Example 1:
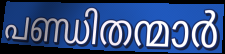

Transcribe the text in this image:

പണ്ഡിതന്മാർ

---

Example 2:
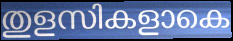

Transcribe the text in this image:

തുളസികളാകെ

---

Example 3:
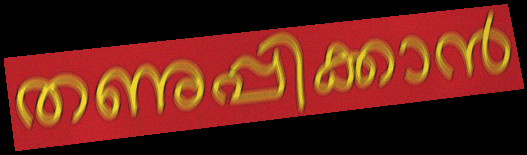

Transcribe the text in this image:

തണുപ്പിക്കാൻ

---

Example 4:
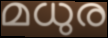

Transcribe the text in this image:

മധുര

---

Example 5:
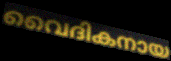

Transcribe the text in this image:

വൈദികനായ